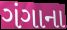
ગંગાના